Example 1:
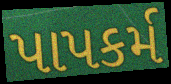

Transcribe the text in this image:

પાપકર્મ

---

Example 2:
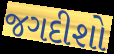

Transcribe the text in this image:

જગદીશો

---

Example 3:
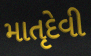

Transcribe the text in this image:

માતૃદેવી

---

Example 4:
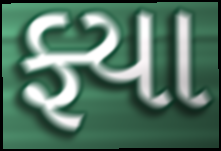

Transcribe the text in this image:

ફ્યા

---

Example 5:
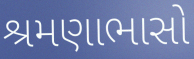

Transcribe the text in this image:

શ્રમણાભાસો